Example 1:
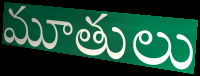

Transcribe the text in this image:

మూతులు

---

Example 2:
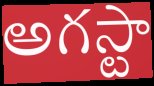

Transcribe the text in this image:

అగస్టా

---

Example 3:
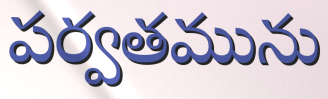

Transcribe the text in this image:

పర్వతమును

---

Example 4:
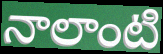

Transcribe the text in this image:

నాలాంటి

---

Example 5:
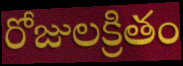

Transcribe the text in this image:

రోజులక్రితం